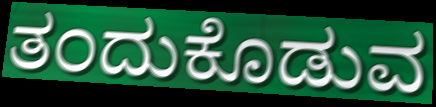
ತಂದುಕೊಡುವ